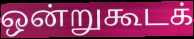
ஒன்றுகூடக்